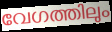
വേഗത്തിലും